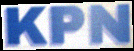
KPN